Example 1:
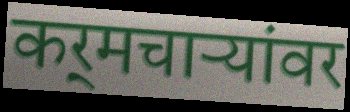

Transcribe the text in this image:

कर्मचाऱ्यांवर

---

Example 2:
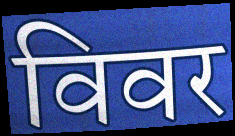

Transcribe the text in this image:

विवर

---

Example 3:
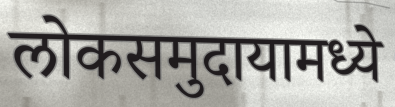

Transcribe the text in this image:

लोकसमुदायामध्ये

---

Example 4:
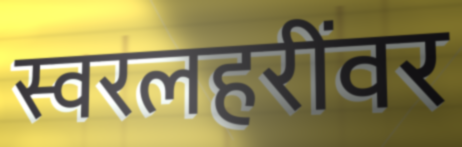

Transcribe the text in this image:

स्वरलहरींवर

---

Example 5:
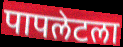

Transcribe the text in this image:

पापलेटला